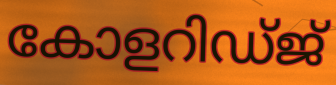
കോളറിഡ്ജ്